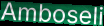
Amboseli